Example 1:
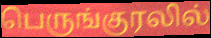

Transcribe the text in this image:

பெருங்குரலில்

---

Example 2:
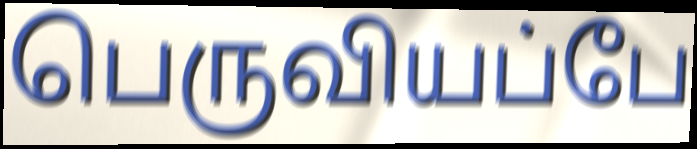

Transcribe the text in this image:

பெருவியப்பே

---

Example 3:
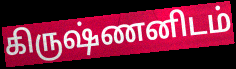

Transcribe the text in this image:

கிருஷ்ணனிடம்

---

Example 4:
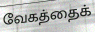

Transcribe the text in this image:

வேகத்தைக்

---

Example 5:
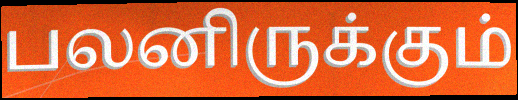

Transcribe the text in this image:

பலனிருக்கும்